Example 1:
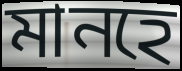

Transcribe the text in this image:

মানহে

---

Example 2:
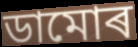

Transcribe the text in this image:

ডামোৰ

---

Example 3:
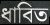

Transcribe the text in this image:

ধাবিত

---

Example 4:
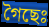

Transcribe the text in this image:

গৈছেঃ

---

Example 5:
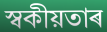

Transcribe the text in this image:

স্বকীয়তাৰ